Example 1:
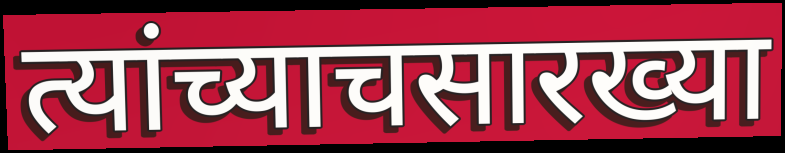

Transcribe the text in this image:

त्यांच्याचसारख्या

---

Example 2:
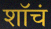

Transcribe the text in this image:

शॉचं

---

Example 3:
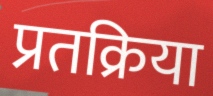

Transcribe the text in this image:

प्रतक्रिया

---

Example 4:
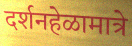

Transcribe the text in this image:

दर्शनहेळामात्रे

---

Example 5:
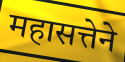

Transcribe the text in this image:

महासत्तेने